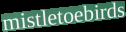
mistletoebirds